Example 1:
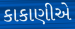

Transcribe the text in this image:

કાકાણીએ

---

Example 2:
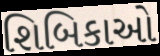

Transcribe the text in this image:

શિબિકાઓ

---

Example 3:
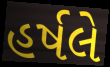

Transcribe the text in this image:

હર્ષલે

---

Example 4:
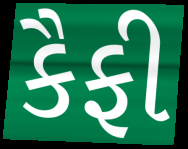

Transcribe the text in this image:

કૈફી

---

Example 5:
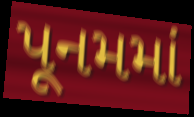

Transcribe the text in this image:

પૂનમમાં